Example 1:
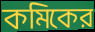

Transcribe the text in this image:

কমিকের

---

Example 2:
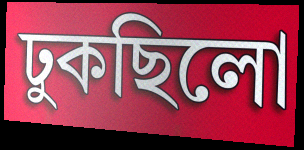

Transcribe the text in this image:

ঢুকছিলো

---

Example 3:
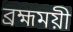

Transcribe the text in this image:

ব্রহ্মময়ী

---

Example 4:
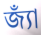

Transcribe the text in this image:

জ্যাঁ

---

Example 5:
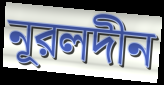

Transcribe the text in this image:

নূরলদীন